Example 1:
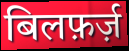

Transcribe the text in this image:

बिलफ़र्ज़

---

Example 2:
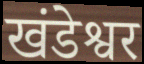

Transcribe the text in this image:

खंडेश्वर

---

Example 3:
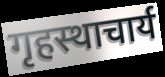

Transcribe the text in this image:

गृहस्थाचार्य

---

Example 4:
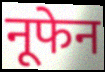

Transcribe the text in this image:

नूफेन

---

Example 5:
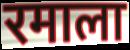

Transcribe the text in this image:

रमाला